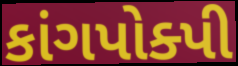
કાંગપોક્પી